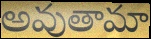
అవుతామా